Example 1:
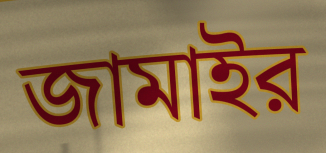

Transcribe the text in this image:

জামাইর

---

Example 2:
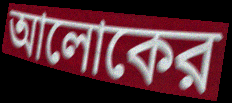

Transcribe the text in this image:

আলোকের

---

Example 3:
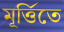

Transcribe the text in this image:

মূর্ত্তিতে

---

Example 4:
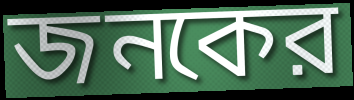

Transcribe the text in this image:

জনকের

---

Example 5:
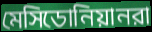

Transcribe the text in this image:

মেসিডোনিয়ানরা